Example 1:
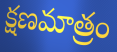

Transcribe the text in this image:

క్షణమాత్రం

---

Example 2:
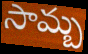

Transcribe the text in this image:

సామ్బ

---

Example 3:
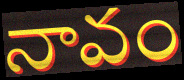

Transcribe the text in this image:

నావం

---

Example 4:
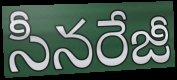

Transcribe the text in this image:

సీనరేజీ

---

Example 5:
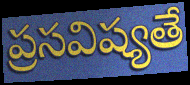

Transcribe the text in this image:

ప్రసవిష్యతే